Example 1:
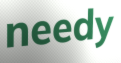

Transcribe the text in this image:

needy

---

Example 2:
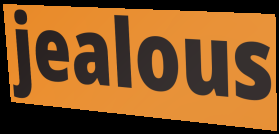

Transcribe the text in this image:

jealous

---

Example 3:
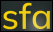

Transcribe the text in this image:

sfa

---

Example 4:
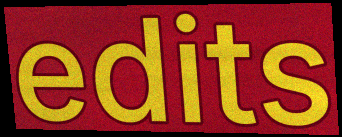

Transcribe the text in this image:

edits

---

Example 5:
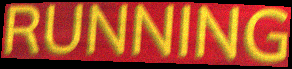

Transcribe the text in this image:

RUNNING